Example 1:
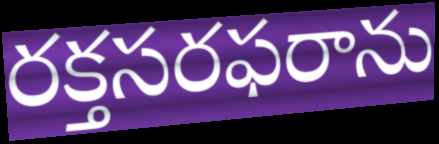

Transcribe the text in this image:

రక్తసరఫరాను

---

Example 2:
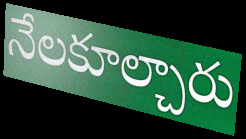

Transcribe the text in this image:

నేలకూల్చారు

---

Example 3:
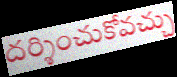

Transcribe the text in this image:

దర్శించుకోవచ్చు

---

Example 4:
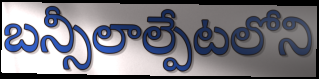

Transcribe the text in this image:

బన్సీలాల్పేటలోని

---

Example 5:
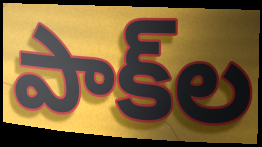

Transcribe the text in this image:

పాక్‌ల